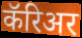
कॅरिअर